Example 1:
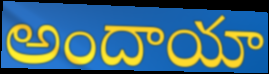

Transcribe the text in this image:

అందాయా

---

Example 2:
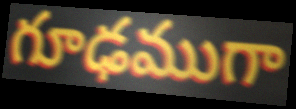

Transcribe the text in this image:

గూఢముగా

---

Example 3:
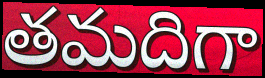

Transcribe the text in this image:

తమదిగా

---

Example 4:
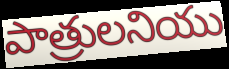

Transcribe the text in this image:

పాత్రులనియు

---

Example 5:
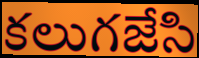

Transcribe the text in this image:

కలుగజేసి